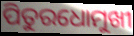
ପିତୁରଧୋମୁଖୀ